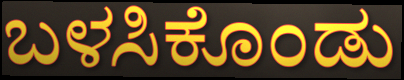
ಬಳಸಿಕೊಂಡು